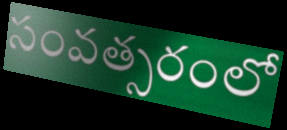
సంవత్సరంలో